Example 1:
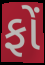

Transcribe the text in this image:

ફોં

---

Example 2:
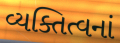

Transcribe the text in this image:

વ્યક્તિત્વનાં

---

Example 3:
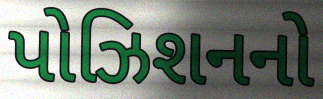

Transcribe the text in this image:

પોઝિશનનો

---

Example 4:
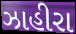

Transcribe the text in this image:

ઝાહીરા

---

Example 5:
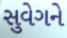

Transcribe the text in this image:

સુવેગને